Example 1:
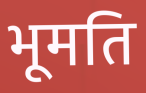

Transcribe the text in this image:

भूमति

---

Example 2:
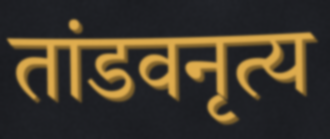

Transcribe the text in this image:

तांडवनृत्य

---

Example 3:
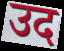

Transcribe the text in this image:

उद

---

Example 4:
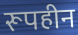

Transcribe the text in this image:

रूपहीन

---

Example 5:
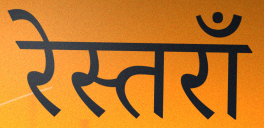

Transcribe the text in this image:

रेस्तराँ